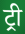
ट्री